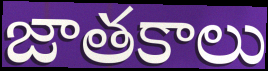
జాతకాలు